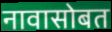
नावासोबत